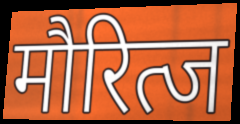
मौरित्ज